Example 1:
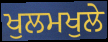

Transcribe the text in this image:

ਖੁਲਮਖੁਲੇ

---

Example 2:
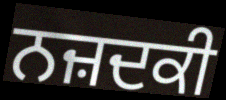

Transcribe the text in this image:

ਨਜ਼ਦਕੀ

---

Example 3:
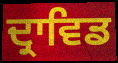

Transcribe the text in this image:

ਦ੍ਰਾਵਿਡ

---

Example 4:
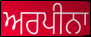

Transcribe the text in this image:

ਅਰਪੀਨਾ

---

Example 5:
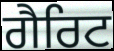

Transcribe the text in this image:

ਗੈਰਿਟ